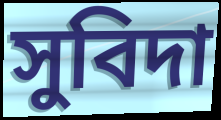
সুবিদা